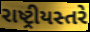
રાષ્ટ્રીયસ્તરે